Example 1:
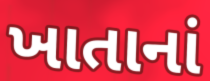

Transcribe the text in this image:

ખાતાનાં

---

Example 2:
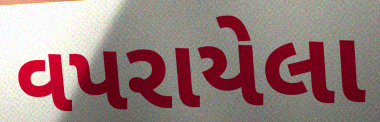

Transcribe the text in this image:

વપરાયેલા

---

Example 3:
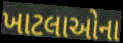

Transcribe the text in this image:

ખાટલાઓના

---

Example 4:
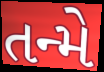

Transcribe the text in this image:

તન્મે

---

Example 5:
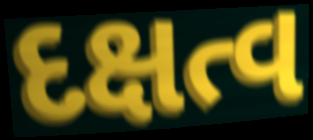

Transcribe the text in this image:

દક્ષત્વ